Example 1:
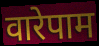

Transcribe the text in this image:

वारेपाम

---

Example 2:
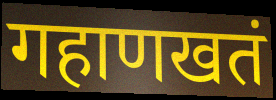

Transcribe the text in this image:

गहाणखतं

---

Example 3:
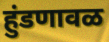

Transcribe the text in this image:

हुंडणावळ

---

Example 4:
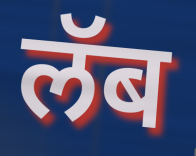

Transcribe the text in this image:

लॅब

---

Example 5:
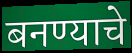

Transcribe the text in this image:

बनण्याचे